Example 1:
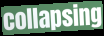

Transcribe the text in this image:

collapsing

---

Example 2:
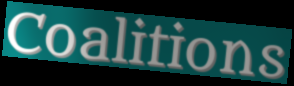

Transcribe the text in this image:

Coalitions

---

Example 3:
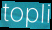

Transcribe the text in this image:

topli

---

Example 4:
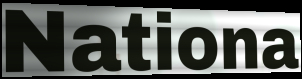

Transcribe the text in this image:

Nationa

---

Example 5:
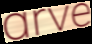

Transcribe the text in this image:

arve